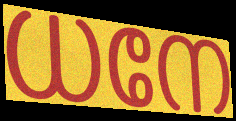
ധനേ